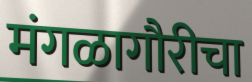
मंगळागौरीचा